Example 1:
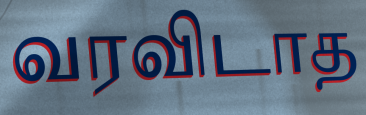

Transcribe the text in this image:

வரவிடாத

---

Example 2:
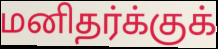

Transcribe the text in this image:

மனிதர்க்குக்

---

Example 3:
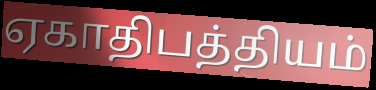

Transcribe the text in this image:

ஏகாதிபத்தியம்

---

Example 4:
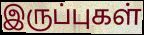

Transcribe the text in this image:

இருப்புகள்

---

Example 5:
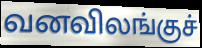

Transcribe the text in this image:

வனவிலங்குச்